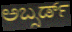
ಅಬ್ಸರ್ಡ್